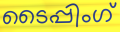
ടൈപ്പിംഗ്